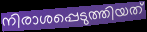
നിരാശപ്പെടുത്തിയത്